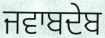
ਜਵਾਬਦੇਬ